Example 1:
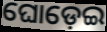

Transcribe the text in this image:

ଘୋଡ଼େଇ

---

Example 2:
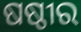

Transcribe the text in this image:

ଷଷ୍ଠୀର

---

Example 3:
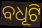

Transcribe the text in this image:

ବଧୂଟି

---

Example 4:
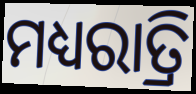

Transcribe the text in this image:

ମଧ୍ଯରାତ୍ରି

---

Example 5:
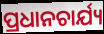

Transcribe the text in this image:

ପ୍ରଧାନଚାର୍ଯ୍ୟ